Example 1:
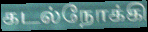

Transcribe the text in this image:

கடல்நோக்கி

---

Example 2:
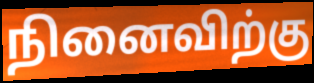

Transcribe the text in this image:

நினைவிற்கு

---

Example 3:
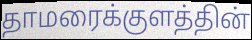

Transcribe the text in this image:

தாமரைக்குளத்தின்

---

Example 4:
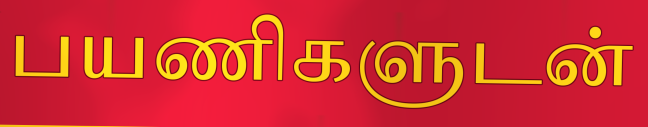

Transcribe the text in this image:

பயணிகளுடன்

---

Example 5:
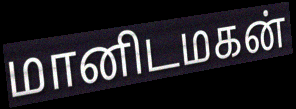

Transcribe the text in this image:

மானிடமகன்